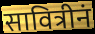
सावित्रीनं